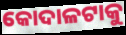
କୋଦାଳଟାକୁ